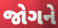
જોગને